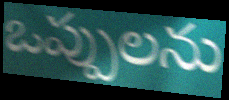
ఒప్పులను